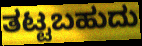
ತಟ್ಟಬಹುದು